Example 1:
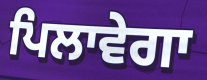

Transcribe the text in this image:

ਪਿਲਾਵੇਗਾ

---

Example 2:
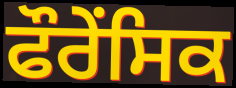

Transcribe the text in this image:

ਫੌਰੇਂਸਿਕ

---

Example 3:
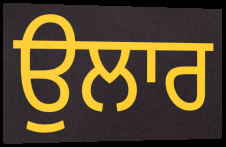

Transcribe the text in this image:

ਉਲਾਰ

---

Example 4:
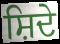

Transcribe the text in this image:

ਸ਼ਿਦੇ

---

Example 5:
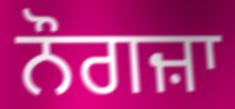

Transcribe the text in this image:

ਨੌਗਜ਼ਾ